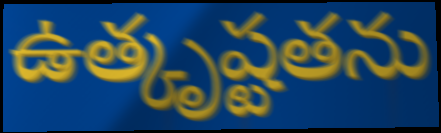
ఉత్కృష్టతను